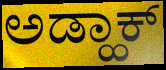
ಅಡ್ಹಾಕ್